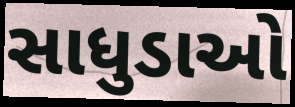
સાધુડાઓ